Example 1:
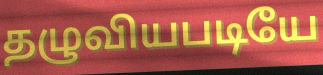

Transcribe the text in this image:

தழுவியபடியே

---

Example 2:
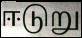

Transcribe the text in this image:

ஈடுறு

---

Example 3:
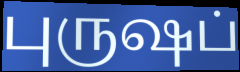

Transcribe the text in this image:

புருஷப்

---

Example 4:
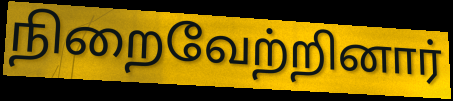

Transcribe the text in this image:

நிறைவேற்றினார்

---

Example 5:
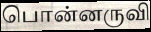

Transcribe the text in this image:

பொன்னருவி